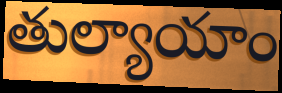
తుల్యాయాం